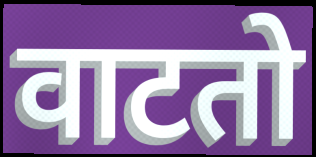
वाटतो